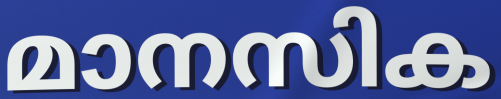
മാനസിക